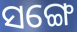
ସଙ୍ଗେ